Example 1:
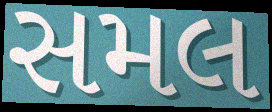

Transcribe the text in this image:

સમલ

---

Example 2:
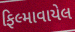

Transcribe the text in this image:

ફિલ્માવાયેલ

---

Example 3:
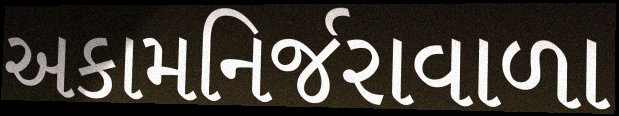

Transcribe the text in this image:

અકામનિર્જરાવાળા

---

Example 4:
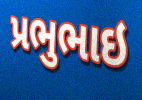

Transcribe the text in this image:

પ્રભુભાઇ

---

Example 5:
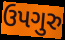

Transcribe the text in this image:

ઉપગુરુ